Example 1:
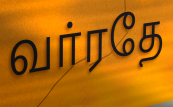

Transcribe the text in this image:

வர்ரதே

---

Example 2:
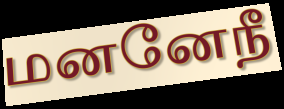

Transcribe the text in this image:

மனனேநீ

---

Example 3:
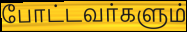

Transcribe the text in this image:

போட்டவர்களும்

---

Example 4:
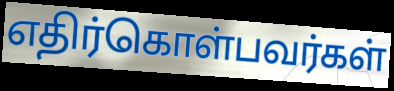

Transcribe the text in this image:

எதிர்கொள்பவர்கள்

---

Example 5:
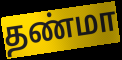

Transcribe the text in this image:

தண்மா